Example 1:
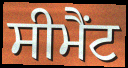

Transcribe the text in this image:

ਸੀਮੈਂਟ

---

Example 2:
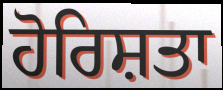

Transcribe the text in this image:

ਹੋਰਿਸ਼ਤਾ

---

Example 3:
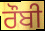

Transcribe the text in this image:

ਰੌਬੀ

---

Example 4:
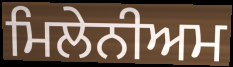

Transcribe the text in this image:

ਮਿਲੇਨੀਅਮ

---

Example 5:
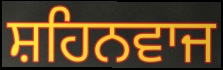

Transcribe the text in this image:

ਸ਼ਹਿਨਵਾਜ